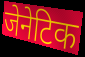
जेनेटिक